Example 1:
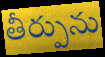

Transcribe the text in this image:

తీర్పును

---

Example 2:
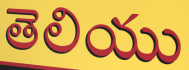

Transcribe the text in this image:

తెలియు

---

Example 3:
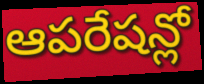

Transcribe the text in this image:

ఆపరేషన్లో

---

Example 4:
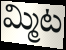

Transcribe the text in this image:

మ్మిట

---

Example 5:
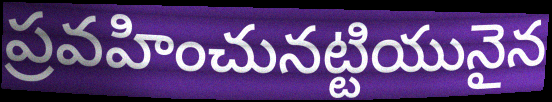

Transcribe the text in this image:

ప్రవహించునట్టియునైన